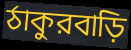
ঠাকুরবাড়ি